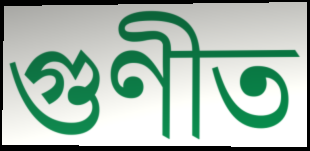
গুণীত